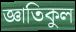
জ্ঞাতিকুল